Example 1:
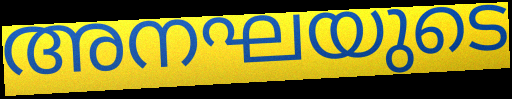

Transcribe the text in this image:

അനഘയുടെ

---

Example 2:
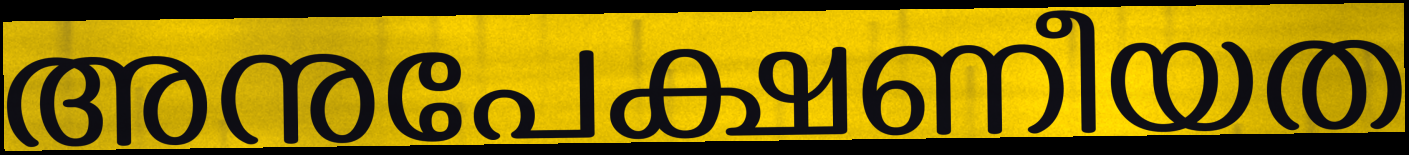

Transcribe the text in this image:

അനുപേക്ഷണീയത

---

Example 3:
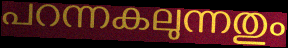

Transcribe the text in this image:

പറന്നകലുന്നതും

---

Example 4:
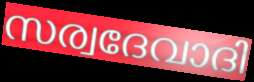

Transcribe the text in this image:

സര്വദേവാദി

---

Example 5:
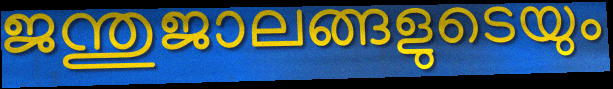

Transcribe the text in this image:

ജന്തുജാലങ്ങളുടെയും